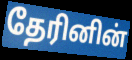
தேரினின்